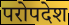
परोपदेश